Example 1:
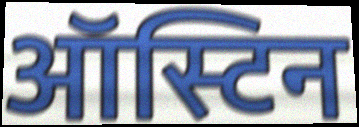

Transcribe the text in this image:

ऑस्टिन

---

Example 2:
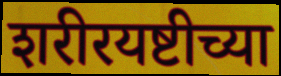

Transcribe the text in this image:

शरीरयष्टीच्या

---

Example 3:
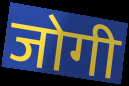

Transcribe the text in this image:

जोगी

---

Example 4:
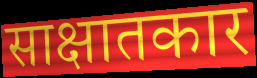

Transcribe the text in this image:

साक्षातकार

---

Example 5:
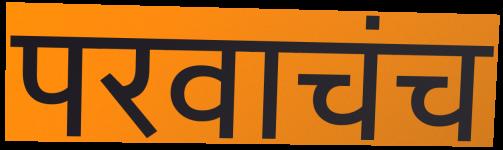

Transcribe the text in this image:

परवाचंच